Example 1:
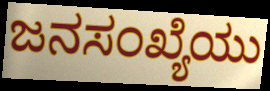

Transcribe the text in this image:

ಜನಸಂಖ್ಯೆಯು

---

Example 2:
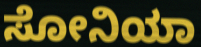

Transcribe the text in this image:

ಸೋನಿಯಾ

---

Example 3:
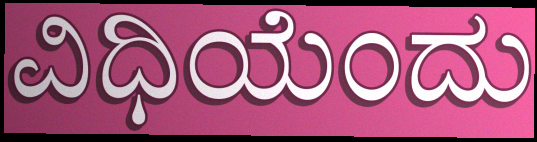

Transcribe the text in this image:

ವಿಧಿಯೆಂದು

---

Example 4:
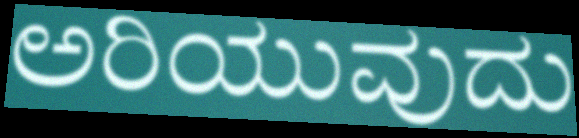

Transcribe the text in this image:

ಅರಿಯುವುದು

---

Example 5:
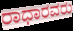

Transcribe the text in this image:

ರಾಧಾರವರು